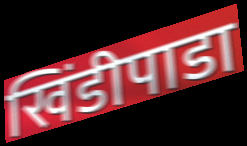
खिंडीपाडा